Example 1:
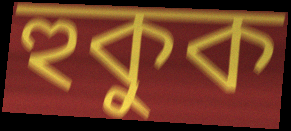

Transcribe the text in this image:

হুকুক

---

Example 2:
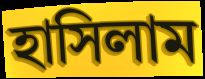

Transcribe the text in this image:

হাসিলাম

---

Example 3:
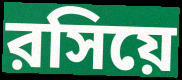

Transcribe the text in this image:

রসিয়ে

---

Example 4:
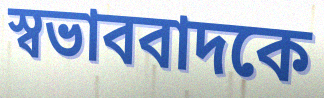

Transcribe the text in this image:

স্বভাববাদকে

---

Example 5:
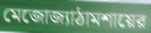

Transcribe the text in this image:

মেজোজ্যাঠামশায়ের